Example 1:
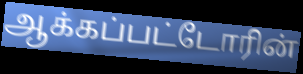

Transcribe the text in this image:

ஆக்கப்பட்டோரின்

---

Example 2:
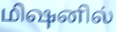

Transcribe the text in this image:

மிஷனில்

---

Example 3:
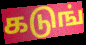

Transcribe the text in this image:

கடுங்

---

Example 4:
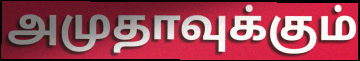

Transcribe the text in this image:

அமுதாவுக்கும்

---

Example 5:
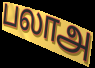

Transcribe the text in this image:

பலாஅ